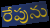
రేపును